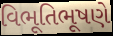
વિભૂતિભૂષણે